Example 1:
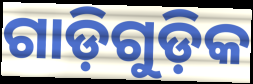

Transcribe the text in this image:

ଗାଡ଼ିଗୁଡ଼ିକ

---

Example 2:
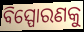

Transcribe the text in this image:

ବିସ୍ପୋରଣକୁ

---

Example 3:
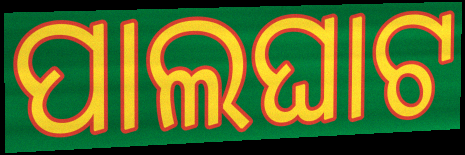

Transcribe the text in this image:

ପାଲଘାଟ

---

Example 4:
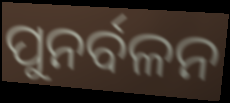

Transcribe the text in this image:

ପୁନର୍ବଳନ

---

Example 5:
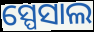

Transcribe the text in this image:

ସ୍ପେସାଲ